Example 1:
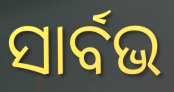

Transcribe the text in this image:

ସାର୍ବଭ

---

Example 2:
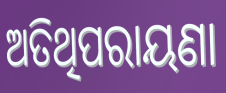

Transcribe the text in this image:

ଅତିଥିପରାୟଣା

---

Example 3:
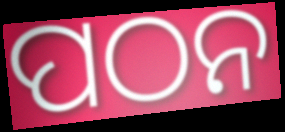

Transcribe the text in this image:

ପଠନ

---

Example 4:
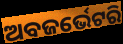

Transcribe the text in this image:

ଅବଜର୍ଭେଟରି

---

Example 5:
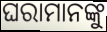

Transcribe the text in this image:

ଘରାମାନଙ୍କୁ